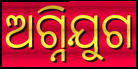
ଅଗ୍ନିଯୁଗ